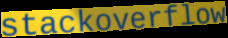
stackoverflow